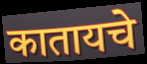
कातायचे